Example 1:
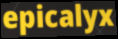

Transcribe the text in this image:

epicalyx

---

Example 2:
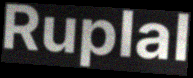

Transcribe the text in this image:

Ruplal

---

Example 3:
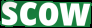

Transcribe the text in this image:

scow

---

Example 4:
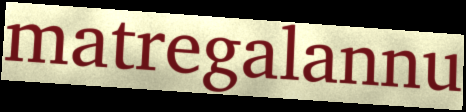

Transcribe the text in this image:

matregalannu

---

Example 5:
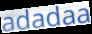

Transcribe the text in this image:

adadaa